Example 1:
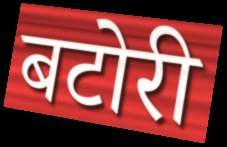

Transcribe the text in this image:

बटोरी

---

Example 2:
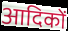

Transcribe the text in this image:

आदिकों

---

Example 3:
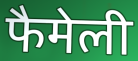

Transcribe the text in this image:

फैमेली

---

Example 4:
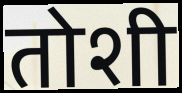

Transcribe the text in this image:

तोशी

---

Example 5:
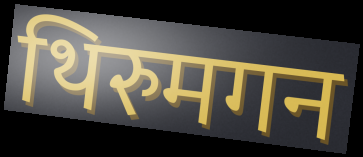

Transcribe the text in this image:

थिरुमगन